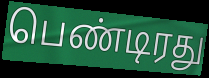
பெண்டிரது